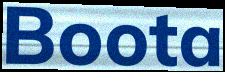
Boota